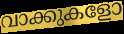
വാക്കുകളോ